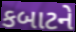
કબાટને